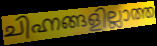
ചിഹ്നങ്ങളില്ലാത്ത